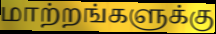
மாற்றங்களுக்கு